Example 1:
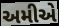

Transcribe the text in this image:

અમીએ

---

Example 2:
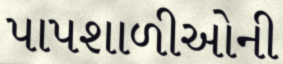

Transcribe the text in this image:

પાપશાળીઓની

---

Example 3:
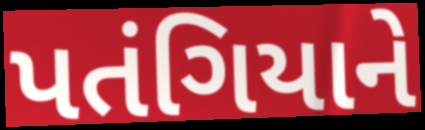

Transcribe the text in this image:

પતંગિયાને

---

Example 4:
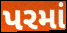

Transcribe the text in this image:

પરમાં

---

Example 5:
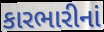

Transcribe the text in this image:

કારભારીનાં